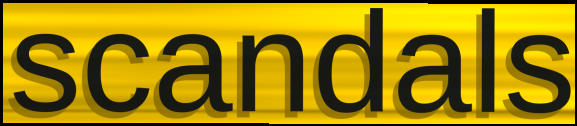
scandals